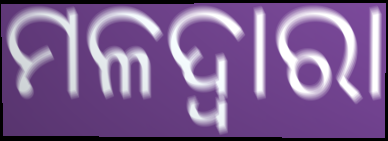
ମଳଦ୍ଵାରା